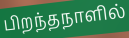
பிறந்தநாளில்